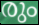
രും